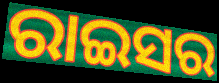
ରାଇସର